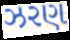
ઝરણ